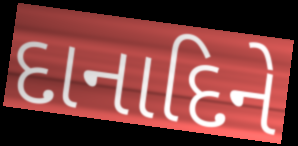
દાનાદિને